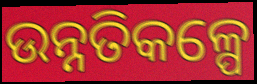
ଉନ୍ନତିକଳ୍ପେ